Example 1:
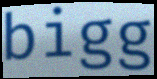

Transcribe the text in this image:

bigg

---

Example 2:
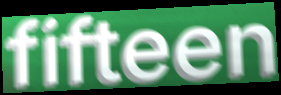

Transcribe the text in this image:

fifteen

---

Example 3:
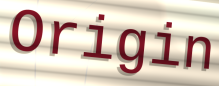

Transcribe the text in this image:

Origin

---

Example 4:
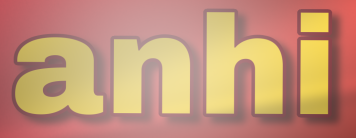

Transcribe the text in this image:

anhi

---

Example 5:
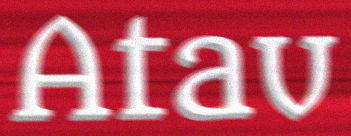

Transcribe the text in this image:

Atau